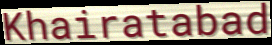
Khairatabad